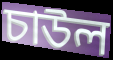
চাউল